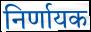
निर्णायक